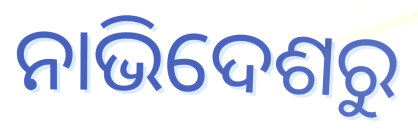
ନାଭିଦେଶରୁ